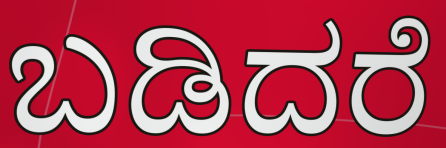
ಬಡಿದರೆ